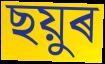
ছয়ুৰ